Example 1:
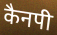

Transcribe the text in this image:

कैनपी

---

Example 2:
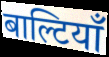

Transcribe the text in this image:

बाल्टियाँ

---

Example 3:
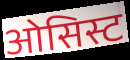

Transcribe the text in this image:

ओसिस्ट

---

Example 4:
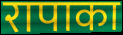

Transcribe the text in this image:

रापाका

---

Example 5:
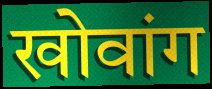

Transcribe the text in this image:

खोवांग